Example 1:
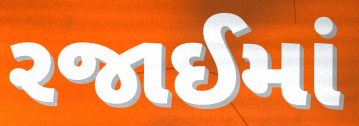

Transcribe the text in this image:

રજાઈમાં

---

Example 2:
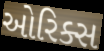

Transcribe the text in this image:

ઓરિક્સ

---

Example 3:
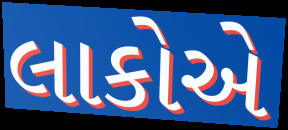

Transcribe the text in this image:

લાકોએ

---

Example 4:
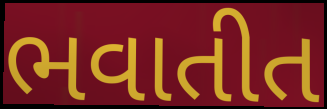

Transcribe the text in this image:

ભવાતીત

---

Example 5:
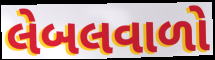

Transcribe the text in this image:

લેબલવાળો